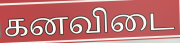
கனவிடை